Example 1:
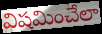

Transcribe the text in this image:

విషమించేలా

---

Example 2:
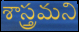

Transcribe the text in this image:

శాస్త్రమని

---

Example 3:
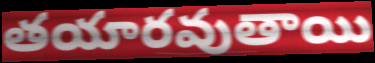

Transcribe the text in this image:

తయారవుతాయి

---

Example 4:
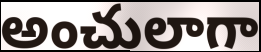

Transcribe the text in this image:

అంచులాగా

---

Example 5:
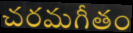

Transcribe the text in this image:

చరమగీతం